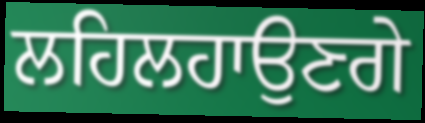
ਲਹਿਲਹਾਉਣਗੇ